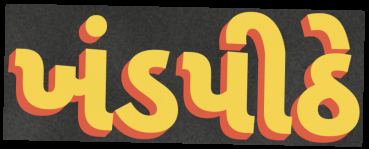
ખંડપીઠે